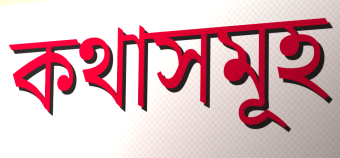
কথাসমূহ